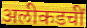
अलीकडचीं